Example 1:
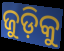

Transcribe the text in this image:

ଜୁଡ଼ିକୁ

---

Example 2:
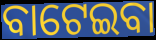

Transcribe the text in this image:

ବାଟେଇବା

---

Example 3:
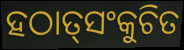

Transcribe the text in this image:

ହଠାତ୍‌ସଂକୁଚିତ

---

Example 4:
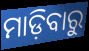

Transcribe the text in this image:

ମାଡ଼ିବାରୁ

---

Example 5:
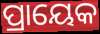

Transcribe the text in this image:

ପ୍ରାୟେକ